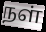
நள்